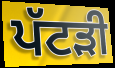
ਪੱਟੜੀ